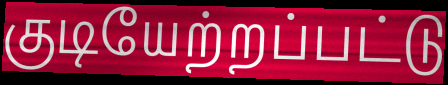
குடியேற்றப்பட்டு